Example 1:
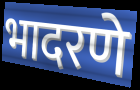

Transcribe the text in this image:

भादरणे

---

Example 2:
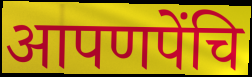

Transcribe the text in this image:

आपणपेंचि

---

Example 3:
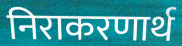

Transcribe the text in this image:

निराकरणार्थ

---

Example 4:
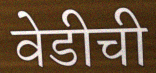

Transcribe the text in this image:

वेडीची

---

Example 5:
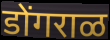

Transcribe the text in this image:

डोंगराळ